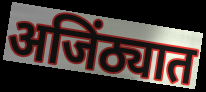
अजिंठ्यात